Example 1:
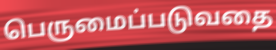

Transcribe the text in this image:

பெருமைப்படுவதை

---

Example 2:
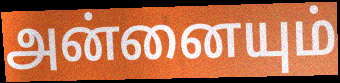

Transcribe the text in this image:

அன்னையும்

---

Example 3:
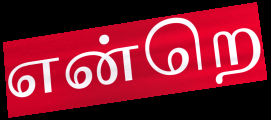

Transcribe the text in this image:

என்றெ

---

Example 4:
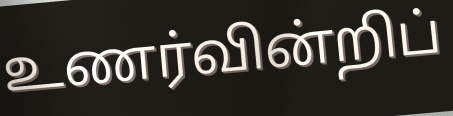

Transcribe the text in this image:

உணர்வின்றிப்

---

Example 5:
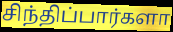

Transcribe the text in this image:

சிந்திப்பார்களா